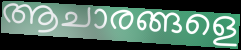
ആചാരങ്ങളെ